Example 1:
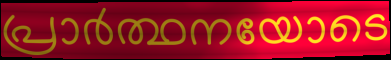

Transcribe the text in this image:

പ്രാർത്ഥനയോടെ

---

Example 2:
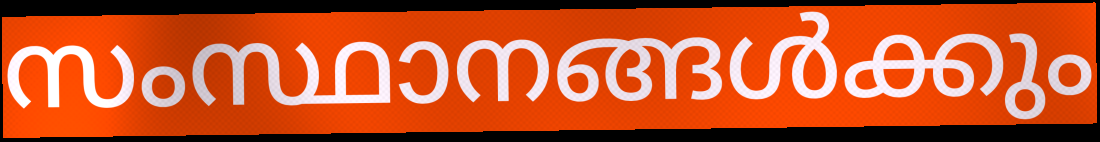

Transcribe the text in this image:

സംസ്ഥാനങ്ങൾക്കും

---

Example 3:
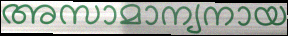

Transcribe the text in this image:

അസാമാന്യനായ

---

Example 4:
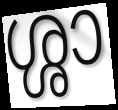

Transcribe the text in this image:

ശ്ശാ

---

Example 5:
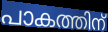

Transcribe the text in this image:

പാകത്തിന്